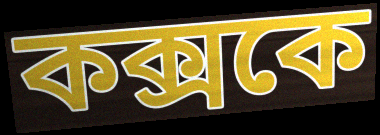
কক্সকে